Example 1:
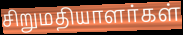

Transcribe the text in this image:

சிறுமதியாளர்கள்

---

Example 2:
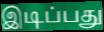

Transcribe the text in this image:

இடிப்பது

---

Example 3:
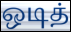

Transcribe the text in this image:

ஒடித்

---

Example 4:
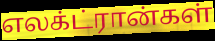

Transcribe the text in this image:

எலக்ட்ரான்கள்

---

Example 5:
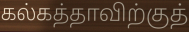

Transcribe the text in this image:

கல்கத்தாவிற்குத்